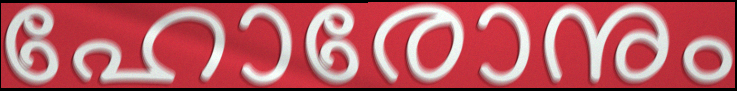
ഹോരോനും